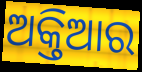
ଅକ୍ତିଆର